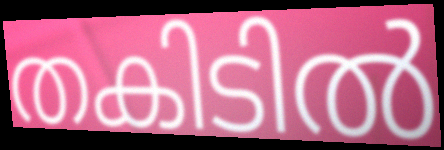
തകിടിൽ